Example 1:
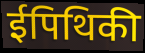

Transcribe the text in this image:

ईपिथिकी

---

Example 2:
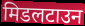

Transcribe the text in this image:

मिडलटाउन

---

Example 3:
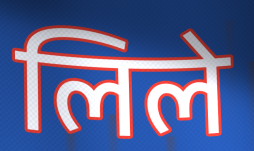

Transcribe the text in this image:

लिले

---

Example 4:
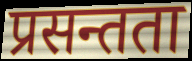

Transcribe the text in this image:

प्रसन्तता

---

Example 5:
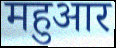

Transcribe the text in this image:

महुआर